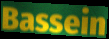
Bassein